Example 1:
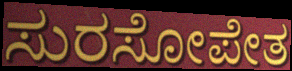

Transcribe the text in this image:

ಸುರಸೋಪೇತ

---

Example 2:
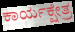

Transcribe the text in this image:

ಕಾರ್ಯಕ್ಷೇತ್ರ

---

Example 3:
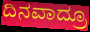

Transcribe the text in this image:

ದಿನವಾದ್ರೂ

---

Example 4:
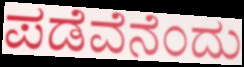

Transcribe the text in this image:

ಪಡೆವೆನೆಂದು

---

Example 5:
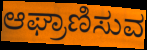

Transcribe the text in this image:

ಆಘ್ರಾಣಿಸುವ